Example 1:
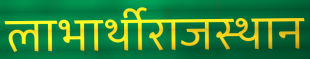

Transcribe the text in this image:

लाभार्थीराजस्थान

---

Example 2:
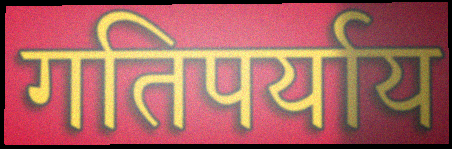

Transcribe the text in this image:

गतिपर्याय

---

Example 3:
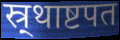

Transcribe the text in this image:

स्र्थाष्टपत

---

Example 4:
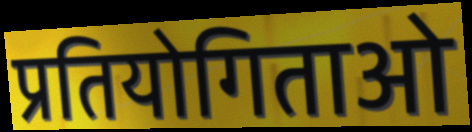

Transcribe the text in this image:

प्रतियोगिताओ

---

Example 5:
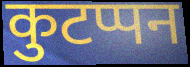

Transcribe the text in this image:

कुटप्पन